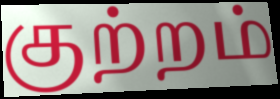
குற்றம்